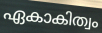
ഏകാകിത്വം